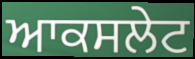
ਆਕਸਲੇਟ